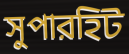
সুপারহিট